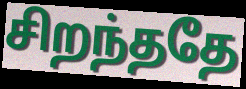
சிறந்ததே